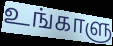
உங்காளு